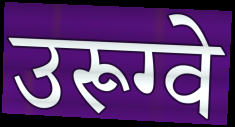
उरूग्वे